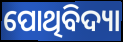
ପୋଥିବିଦ୍ୟା